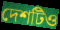
দেশটিও